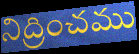
నిద్రించము